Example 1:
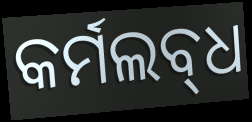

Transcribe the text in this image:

କର୍ମଲବ୍‌ଧ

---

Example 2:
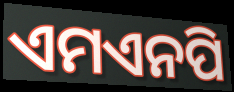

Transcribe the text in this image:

ଏମଏନପି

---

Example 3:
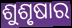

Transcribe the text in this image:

ଶୁଶୃଷାର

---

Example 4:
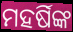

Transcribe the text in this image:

ମହର୍ଷିଙ୍କ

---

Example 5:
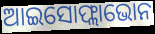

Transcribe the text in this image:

ଆଇସୋଫ୍ଲାଭୋନ